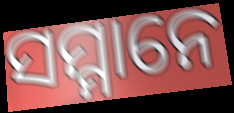
ସମ୍ମାନେ